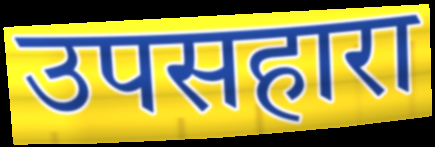
उपसहारा